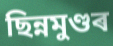
ছিন্নমুণ্ডৰ